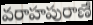
వరాహపురాణే